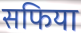
सफिया